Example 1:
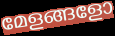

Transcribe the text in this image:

മേളങ്ങളോ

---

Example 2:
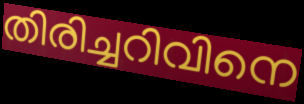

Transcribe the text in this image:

തിരിച്ചറിവിനെ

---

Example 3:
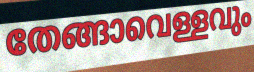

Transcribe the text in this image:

തേങ്ങാവെള്ളവും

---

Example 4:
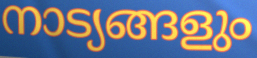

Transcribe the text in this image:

നാട്യങ്ങളും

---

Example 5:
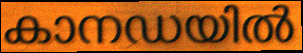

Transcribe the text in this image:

കാനഡയിൽ